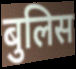
बुलिस